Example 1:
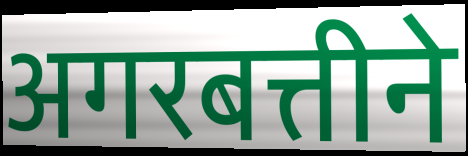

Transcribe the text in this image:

अगरबत्तीने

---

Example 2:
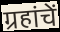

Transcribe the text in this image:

ग्रहांचें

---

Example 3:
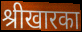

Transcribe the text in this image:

श्रीखारका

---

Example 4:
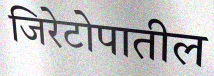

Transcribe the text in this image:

जिरेटोपातील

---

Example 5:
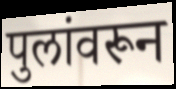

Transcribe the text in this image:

पुलांवरून